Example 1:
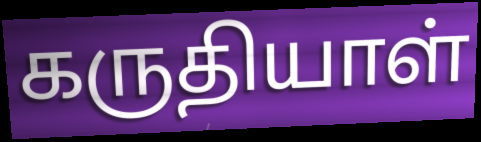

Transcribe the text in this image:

கருதியாள்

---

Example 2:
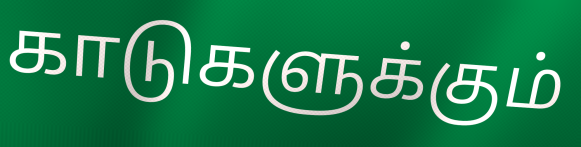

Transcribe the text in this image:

காடுகளுக்கும்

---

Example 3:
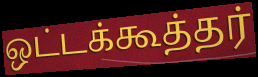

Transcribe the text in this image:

ஒட்டக்கூத்தர்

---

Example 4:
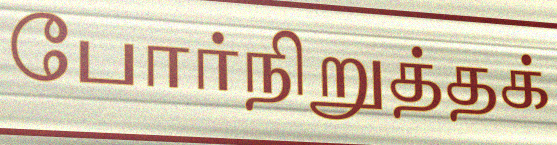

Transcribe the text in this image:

போர்நிறுத்தக்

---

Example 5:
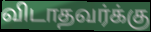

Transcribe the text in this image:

விடாதவர்க்கு